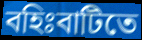
বহিঃবাটিতে